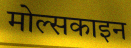
मोल्सकाइन